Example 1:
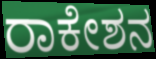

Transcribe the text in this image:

ರಾಕೇಶನ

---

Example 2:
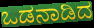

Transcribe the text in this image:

ಒಡನಾಡಿದ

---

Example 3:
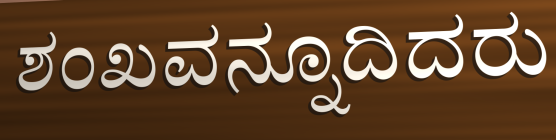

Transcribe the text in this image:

ಶಂಖವನ್ನೂದಿದರು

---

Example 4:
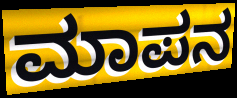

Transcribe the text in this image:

ಮಾಪನ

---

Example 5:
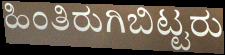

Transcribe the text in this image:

ಹಿಂತಿರುಗಿಬಿಟ್ಟರು